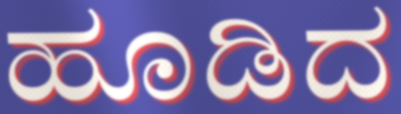
ಹೂಡಿದ